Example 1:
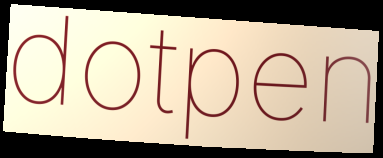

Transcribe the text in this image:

dotpen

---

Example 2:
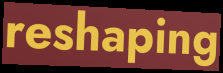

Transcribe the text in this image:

reshaping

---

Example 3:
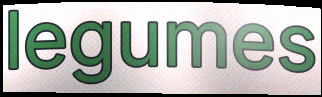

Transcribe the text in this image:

legumes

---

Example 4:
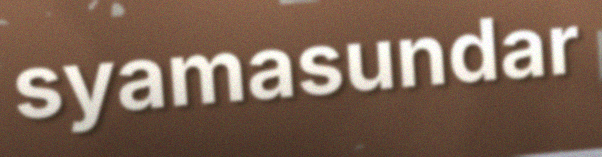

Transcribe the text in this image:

syamasundar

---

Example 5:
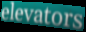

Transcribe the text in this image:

elevators